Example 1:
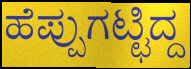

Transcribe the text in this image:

ಹೆಪ್ಪುಗಟ್ಟಿದ್ದ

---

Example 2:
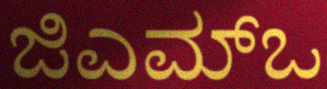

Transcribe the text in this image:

ಜಿಎಮ್ಒ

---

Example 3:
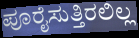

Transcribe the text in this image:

ಪೂರೈಸುತ್ತಿರಲಿಲ್ಲ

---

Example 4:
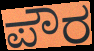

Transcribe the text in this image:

ಪೌರ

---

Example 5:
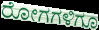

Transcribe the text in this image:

ರೋಗಗಳಿಗೂ